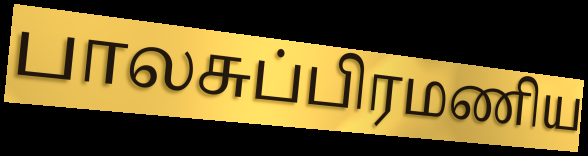
பாலசுப்பிரமணிய